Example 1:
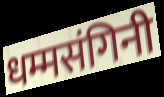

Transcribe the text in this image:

धम्मसंगिनी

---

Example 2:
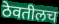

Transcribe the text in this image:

ठेवतीलच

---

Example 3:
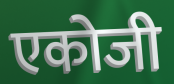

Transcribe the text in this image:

एकोजी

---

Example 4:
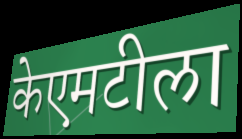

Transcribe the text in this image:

केएमटीला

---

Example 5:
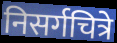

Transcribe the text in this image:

निसर्गचित्रे